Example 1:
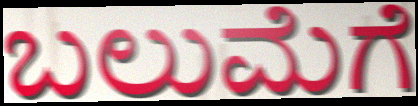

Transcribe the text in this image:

ಬಲುಮೆಗೆ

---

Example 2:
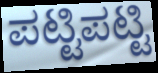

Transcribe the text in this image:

ಪಟ್ಟಿಪಟ್ಟಿ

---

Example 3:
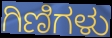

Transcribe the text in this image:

ಗಿಣಿಗಳು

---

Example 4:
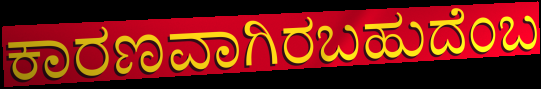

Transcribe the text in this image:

ಕಾರಣವಾಗಿರಬಹುದೆಂಬ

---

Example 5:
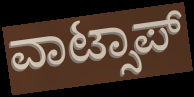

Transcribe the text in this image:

ವಾಟ್ಸಾಪ್